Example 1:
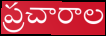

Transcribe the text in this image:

ప్రచారాల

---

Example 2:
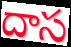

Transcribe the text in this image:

దాస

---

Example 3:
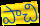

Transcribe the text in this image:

పాచి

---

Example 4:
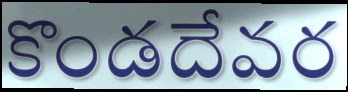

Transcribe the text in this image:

కొండదేవర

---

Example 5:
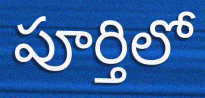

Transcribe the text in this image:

పూర్తిలో